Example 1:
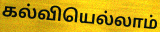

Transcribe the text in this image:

கல்வியெல்லாம்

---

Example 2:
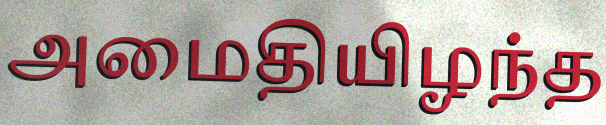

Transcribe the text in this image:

அமைதியிழந்த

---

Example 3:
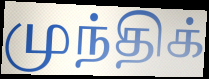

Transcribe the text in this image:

முந்திக்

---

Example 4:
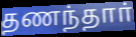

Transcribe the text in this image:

தணந்தார்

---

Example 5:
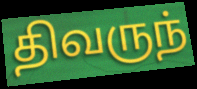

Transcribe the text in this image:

திவருந்